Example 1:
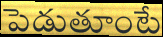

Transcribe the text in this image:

పెడుతూంటే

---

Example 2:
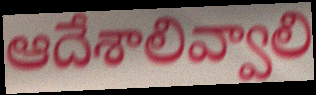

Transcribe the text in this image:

ఆదేశాలివ్వాలి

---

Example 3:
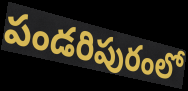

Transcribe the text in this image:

పండరిపురంలో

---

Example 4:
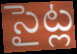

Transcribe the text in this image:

సైట్ల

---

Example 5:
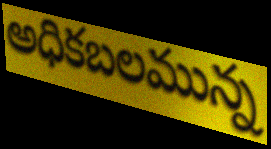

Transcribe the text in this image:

అధికబలమున్న